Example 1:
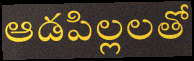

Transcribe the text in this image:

ఆడపిల్లలతో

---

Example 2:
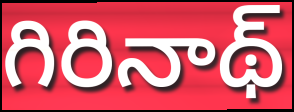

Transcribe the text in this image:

గిరినాథ్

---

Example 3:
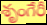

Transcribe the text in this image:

శృంగేరీ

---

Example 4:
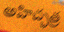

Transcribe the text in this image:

అహిచ్ఛత్ర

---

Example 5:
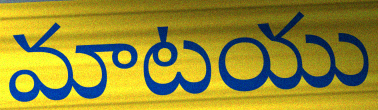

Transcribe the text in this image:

మాటయు